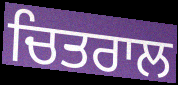
ਚਿਤਰਾਲ